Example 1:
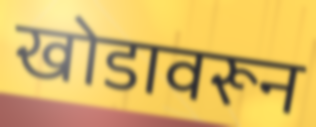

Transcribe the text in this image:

खोडावरून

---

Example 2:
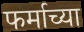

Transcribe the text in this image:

फर्माच्या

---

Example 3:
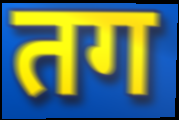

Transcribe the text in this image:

तग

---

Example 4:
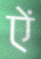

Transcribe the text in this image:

ऐं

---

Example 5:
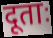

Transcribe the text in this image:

दूताः